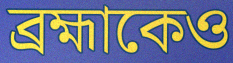
ব্রহ্মাকেও